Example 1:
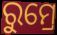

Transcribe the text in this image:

ରୁମ୍ରେ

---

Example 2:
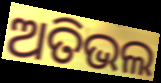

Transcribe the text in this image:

ଅତିଭଲ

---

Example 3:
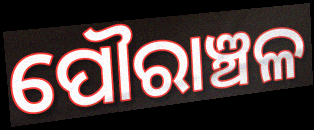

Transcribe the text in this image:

ପୌରାଞ୍ଚଳ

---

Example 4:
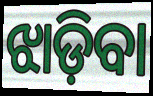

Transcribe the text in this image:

ଝାଡ଼ିବା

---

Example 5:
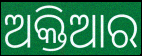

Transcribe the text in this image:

ଅକ୍ତିଆର